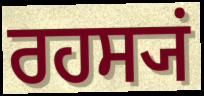
ਰਹਸ੍ਯਂ